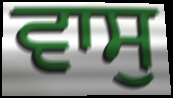
ਵਾਸੁ